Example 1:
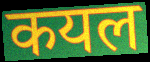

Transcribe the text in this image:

कयल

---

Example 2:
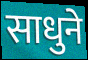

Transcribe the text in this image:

साधुने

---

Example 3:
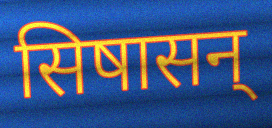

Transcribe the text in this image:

सिषासन्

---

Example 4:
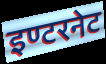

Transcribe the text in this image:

इण्टरनेट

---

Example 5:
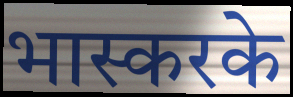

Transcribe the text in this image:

भास्करके